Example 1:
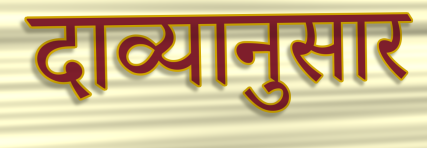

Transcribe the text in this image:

दाव्यानुसार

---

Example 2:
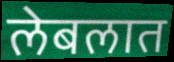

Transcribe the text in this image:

लेबलात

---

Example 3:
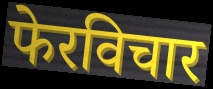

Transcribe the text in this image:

फेरविचार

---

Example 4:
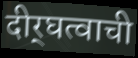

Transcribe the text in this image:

दीर्घत्वाची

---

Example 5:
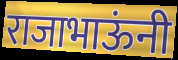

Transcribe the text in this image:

राजाभाऊंनी